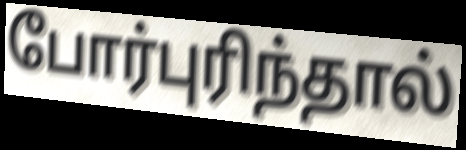
போர்புரிந்தால்